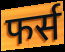
फर्स